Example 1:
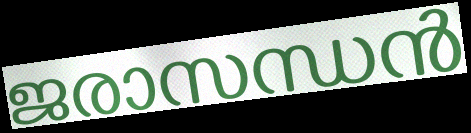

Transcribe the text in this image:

ജരാസന്ധൻ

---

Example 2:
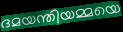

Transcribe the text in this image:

ദമയന്തിയമ്മയെ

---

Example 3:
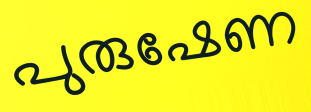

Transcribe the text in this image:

പുരുഷേണ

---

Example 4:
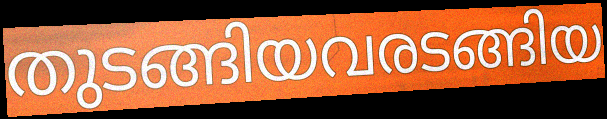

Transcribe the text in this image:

തുടങ്ങിയവരടങ്ങിയ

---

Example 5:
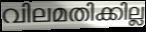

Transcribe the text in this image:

വിലമതിക്കില്ല